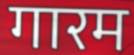
गारम